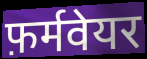
फ़र्मवेयर